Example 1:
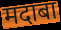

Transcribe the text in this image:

मदाबा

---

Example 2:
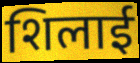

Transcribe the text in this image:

शिलाई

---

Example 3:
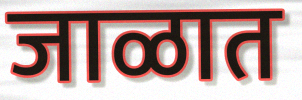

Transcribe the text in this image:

जाळात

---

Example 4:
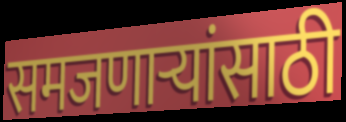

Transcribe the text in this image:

समजणाऱ्यांसाठी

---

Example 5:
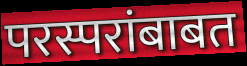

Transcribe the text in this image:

परस्परांबाबत